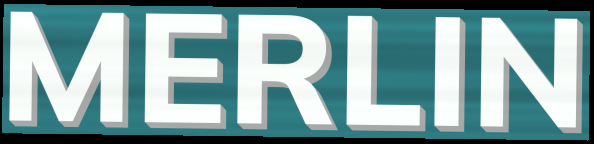
MERLIN